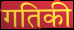
गतिकी